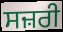
ਸਜ਼ਰੀ